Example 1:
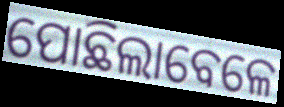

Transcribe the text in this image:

ପୋଛିଲାବେଳେ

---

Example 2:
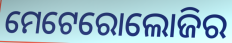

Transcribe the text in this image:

ମେଟେରୋଲୋଜିର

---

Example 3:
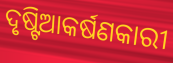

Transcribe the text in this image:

ଦୃଷ୍ଟିଆକର୍ଷଣକାରୀ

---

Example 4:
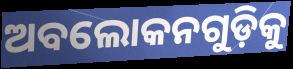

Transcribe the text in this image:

ଅବଲୋକନଗୁଡ଼ିକୁ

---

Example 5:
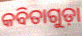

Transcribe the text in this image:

କବିତାଗୁଡ଼ା